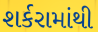
શર્કરામાંથી